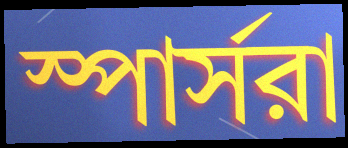
স্পার্সরা